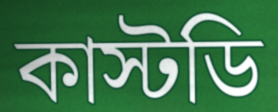
কাস্টডি